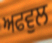
ਅਫਵੁਲ